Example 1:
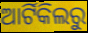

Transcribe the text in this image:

ଆର୍ଟିକିଲରୁ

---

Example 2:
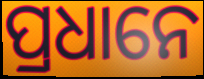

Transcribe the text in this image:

ପ୍ରଧାନେ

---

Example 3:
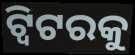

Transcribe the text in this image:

ଟ୍ୱିଟରକୁ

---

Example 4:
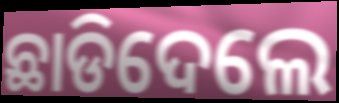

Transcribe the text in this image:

ଛାଡିଦେଲେ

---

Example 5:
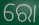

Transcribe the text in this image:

ରୋ